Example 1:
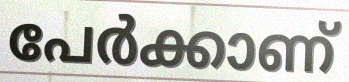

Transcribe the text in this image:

പേർക്കാണ്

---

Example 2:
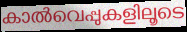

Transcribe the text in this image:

കാൽവെപ്പുകളിലൂടെ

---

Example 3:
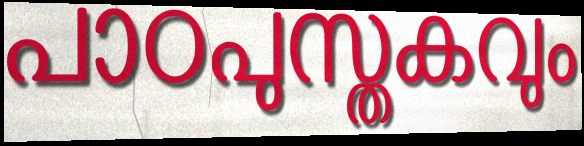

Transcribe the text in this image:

പാഠപുസ്തകവും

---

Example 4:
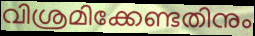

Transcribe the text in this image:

വിശ്രമിക്കേണ്ടതിനും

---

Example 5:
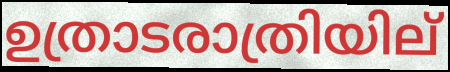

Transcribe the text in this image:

ഉത്രാടരാത്രിയില്